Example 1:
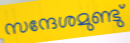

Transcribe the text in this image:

സന്ദേശമുണ്ടു്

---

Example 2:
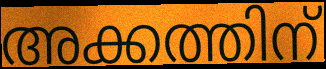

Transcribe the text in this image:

അക്കത്തിന്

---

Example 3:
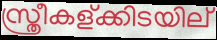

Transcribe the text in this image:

സ്ത്രീകള്ക്കിടയില്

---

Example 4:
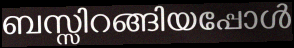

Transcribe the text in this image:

ബസ്സിറങ്ങിയപ്പോൾ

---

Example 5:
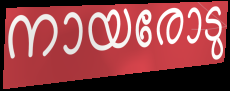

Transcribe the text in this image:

നായരോടു